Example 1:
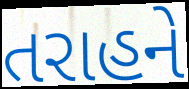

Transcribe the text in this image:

તરાહને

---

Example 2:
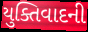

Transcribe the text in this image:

યુક્તિવાદની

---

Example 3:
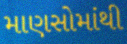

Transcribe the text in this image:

માણસોમાંથી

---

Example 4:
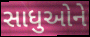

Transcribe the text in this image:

સાધુઓને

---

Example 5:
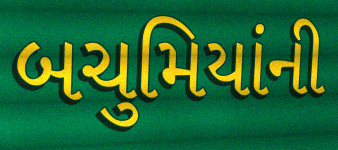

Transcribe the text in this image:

બચુમિયાંની